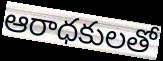
ఆరాధకులతో